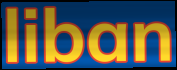
liban